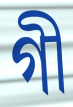
গী